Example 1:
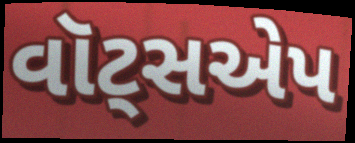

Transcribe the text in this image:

વૉટ્સએપ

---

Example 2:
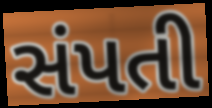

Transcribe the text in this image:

સંપતી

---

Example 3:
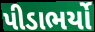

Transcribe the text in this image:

પીડાભર્યો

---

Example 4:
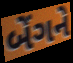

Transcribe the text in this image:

બેંગને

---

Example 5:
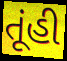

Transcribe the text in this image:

તૂંહી